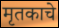
मृतकाचे